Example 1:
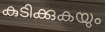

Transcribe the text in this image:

കുടിക്കുകയും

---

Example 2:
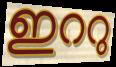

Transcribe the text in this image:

ഇററു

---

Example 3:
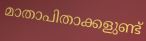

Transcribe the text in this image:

മാതാപിതാക്കളുണ്ട്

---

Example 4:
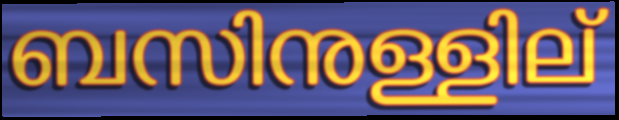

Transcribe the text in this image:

ബസിനുള്ളില്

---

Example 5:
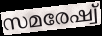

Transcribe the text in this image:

സമരേഷ്വ്